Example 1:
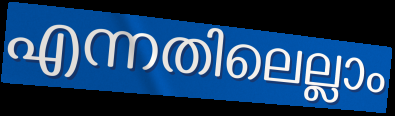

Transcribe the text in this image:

എന്നതിലെല്ലാം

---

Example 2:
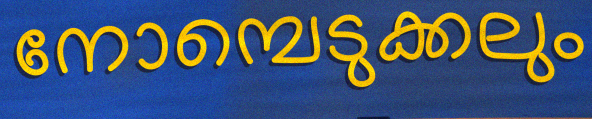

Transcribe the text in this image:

നോമ്പെടുക്കലും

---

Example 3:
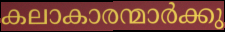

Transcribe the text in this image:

കലാകാരന്മാർക്കു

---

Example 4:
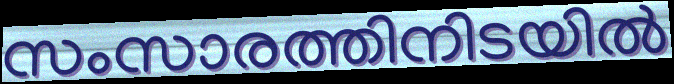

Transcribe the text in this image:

സംസാരത്തിനിടയിൽ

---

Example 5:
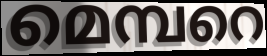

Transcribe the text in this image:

മെമ്പറെ